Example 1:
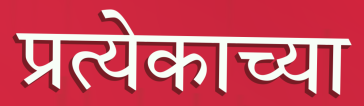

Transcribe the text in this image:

प्रत्येकाच्या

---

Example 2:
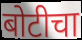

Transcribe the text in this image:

बोटीचा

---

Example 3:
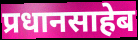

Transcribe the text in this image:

प्रधानसाहेब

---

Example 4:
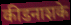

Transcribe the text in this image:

कीडनाशके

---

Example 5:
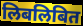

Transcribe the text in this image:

लिबलिबित